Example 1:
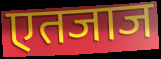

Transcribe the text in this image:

एतजाज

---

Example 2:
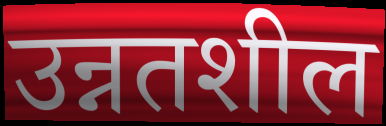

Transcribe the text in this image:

उन्नतशील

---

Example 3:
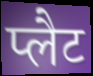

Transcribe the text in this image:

प्लैट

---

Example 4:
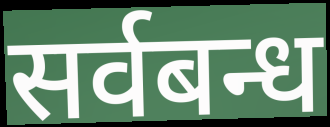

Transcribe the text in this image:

सर्वबन्ध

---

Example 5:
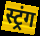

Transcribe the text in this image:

स्ट्रंग